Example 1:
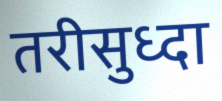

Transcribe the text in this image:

तरीसुध्दा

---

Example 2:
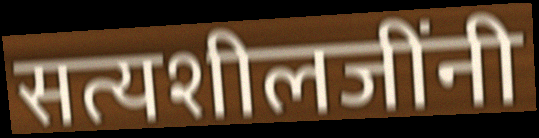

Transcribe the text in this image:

सत्यशीलजींनी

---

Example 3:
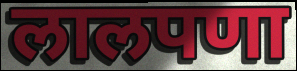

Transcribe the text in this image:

लालपणा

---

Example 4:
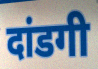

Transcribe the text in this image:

दांडगी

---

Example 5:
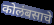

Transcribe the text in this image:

कोलंबसाचे